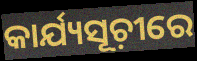
କାର୍ଯ୍ୟସୂଚ଼ୀରେ